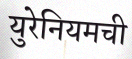
युरेनियमची